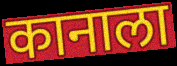
कानाला